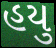
હયુ